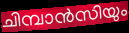
ചിമ്പാൻസിയും